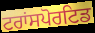
ਟਰਾਂਸਪੋਰਟਿਡ